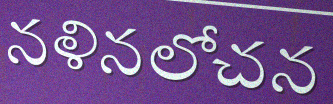
నళినలోచన